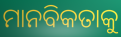
ମାନବିକତାକୁ